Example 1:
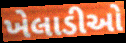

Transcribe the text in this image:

ખેલાડીઓ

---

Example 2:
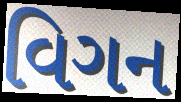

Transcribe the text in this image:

વિગન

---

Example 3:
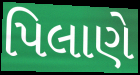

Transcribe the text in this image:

પિલાણે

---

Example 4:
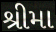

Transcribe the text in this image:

શ્રીમા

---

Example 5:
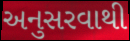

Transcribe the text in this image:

અનુસરવાથી